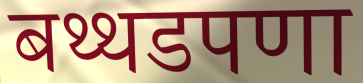
बथ्थडपणा